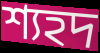
শ্যহদ